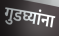
गुडघ्यांना